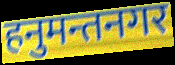
हनुमन्तनगर